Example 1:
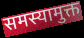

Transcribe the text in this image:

समस्यामुक्त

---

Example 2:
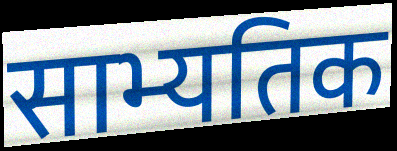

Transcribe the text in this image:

साभ्यतिक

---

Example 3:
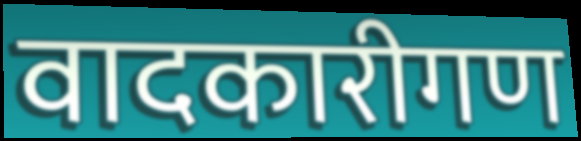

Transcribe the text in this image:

वादकारीगण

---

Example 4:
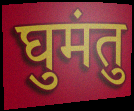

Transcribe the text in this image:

घुमंतु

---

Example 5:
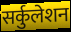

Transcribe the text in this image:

सर्कुलेशन